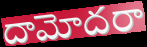
దామోదరా